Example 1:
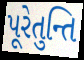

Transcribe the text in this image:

પૂરેતુન્તિ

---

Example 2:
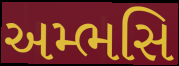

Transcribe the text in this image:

અમ્ભસિ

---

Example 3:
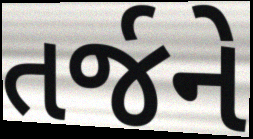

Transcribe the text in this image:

તર્જને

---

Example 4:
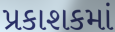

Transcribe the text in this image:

પ્રકાશકમાં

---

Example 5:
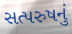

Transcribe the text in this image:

સત્પરુષનું